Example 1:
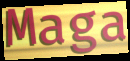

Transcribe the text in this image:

Maga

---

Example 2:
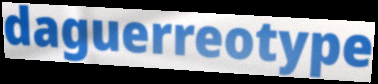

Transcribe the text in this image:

daguerreotype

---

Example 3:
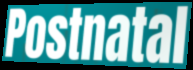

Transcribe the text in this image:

Postnatal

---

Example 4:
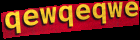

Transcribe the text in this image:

qewqeqwe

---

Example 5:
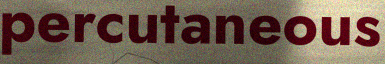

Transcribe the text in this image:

percutaneous